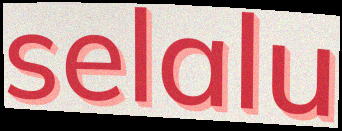
selalu